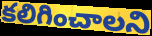
కలిగించాలని